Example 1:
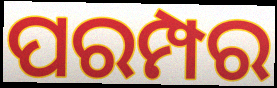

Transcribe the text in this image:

ପରମ୍ପର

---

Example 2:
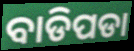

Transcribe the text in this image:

ବାଡିପଡା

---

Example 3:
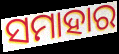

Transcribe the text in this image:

ସମାହାର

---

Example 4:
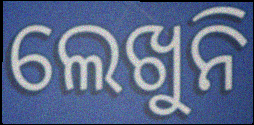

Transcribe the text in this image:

ଲେଖୁନି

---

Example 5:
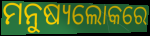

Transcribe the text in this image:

ମନୁଷ୍ୟଲୋକରେ